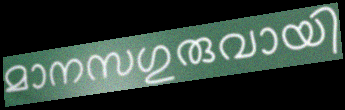
മാനസഗുരുവായി